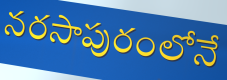
నరసాపురంలోనే